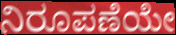
ನಿರೂಪಣೆಯೇ